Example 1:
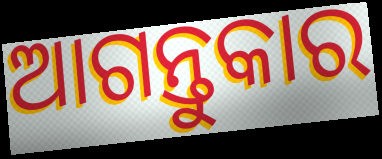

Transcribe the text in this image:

ଆଗନ୍ତୁକାର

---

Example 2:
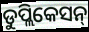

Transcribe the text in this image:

ଡୁପ୍ଲିକେସନ୍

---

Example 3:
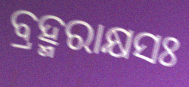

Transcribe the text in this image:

ବ୍ରହ୍ମରାକ୍ଷସଃ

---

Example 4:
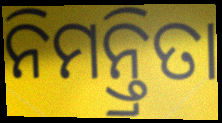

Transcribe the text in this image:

ନିମନ୍ତ୍ରିତା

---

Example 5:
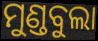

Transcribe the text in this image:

ମୁଣ୍ଡବୁଲା